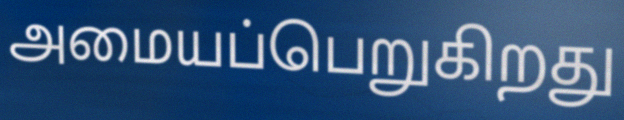
அமையப்பெறுகிறது